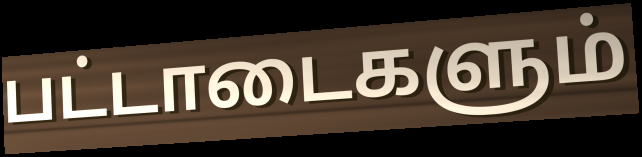
பட்டாடைகளும்